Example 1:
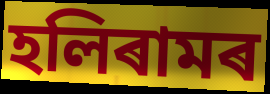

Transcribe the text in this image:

হলিৰামৰ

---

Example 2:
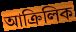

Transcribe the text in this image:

আক্ৰিলিক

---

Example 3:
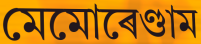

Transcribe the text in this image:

মেমোৰেণ্ডাম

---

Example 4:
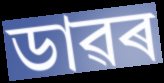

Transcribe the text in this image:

ডাৱৰ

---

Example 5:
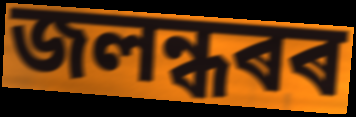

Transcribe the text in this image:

জলন্ধৰৰ